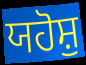
ਯਹੋਸ਼ੁ